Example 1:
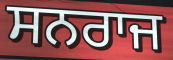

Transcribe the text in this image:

ਸਨਰਾਜ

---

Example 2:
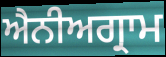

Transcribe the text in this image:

ਐਨੀਅਗ੍ਰਾਮ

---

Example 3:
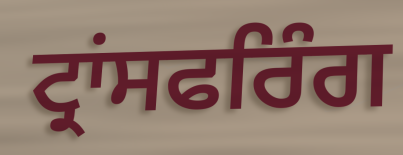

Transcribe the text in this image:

ਟ੍ਰਾਂਸਫਰਿੰਗ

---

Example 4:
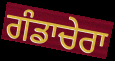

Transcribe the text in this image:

ਗੰਡਾਚੇਰਾ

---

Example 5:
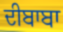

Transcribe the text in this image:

ਦੀਬਾਬਾ